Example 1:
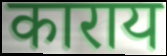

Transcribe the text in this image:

काराय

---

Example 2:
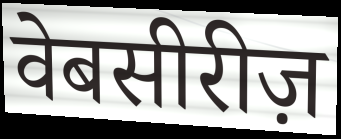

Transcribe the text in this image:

वेबसीरीज़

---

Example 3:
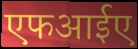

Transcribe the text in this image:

एफआईए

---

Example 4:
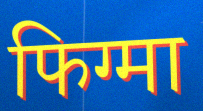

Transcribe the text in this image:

फिग्मा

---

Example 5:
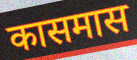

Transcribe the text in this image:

कासमास